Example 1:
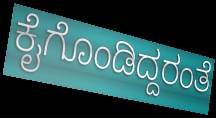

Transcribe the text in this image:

ಕೈಗೊಂಡಿದ್ದರಂತೆ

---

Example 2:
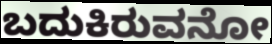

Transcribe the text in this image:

ಬದುಕಿರುವನೋ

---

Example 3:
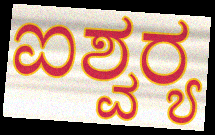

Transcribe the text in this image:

ಐಶ್ವರ‍್ಯ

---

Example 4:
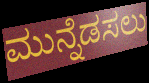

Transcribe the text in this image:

ಮುನ್ನೆಡಸಲು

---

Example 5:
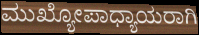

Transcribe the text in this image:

ಮುಖ್ಯೋಪಾಧ್ಯಾಯರಾಗಿ